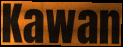
Kawan